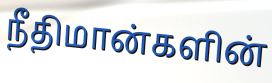
நீதிமான்களின்